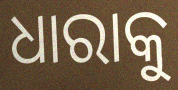
ଧାରାକୁ